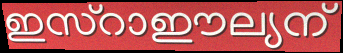
ഇസ്റാഈല്യന്